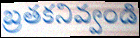
బ్రతకనివ్వండి